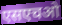
एसएचओ